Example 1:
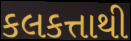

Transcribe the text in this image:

કલકત્તાથી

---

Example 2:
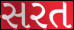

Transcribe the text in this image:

સરત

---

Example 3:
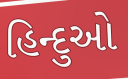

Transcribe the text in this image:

હિન્દુઓ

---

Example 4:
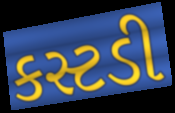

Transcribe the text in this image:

કસ્ટડી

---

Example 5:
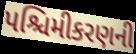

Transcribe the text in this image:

પશ્ચિમીકરણની